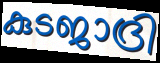
കുടജാദ്രി